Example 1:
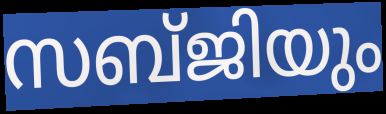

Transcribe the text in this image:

സബ്ജിയും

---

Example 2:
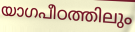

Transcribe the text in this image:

യാഗപീഠത്തിലും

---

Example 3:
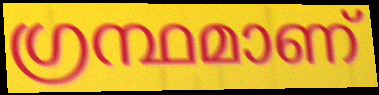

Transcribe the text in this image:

ഗ്രന്ഥമാണ്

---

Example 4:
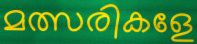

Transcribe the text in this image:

മത്സരികളേ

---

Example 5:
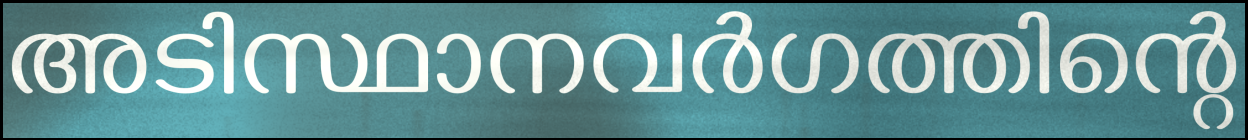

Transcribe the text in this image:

അടിസ്ഥാനവർഗത്തിന്റെ